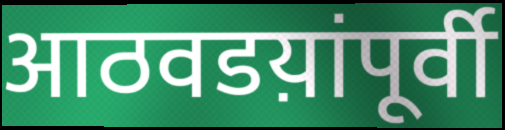
आठवडय़ांपूर्वी